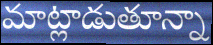
మాట్లాడుతూన్నా